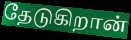
தேடுகிறான்